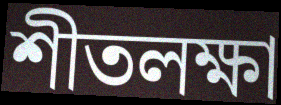
শীতলক্ষা